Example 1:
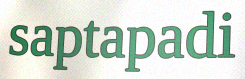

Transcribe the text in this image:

saptapadi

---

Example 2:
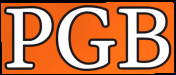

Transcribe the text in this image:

PGB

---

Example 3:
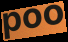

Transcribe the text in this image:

poo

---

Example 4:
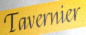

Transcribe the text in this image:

Tavernier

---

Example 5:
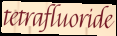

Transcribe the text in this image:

tetrafluoride